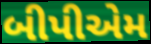
બીપીએમ